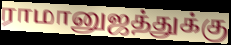
ராமானுஜத்துக்கு